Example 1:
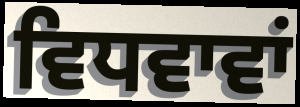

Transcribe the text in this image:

ਵਿਧਵਾਵਾਂ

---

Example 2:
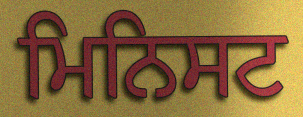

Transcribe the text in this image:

ਮਿਨਿਸਟ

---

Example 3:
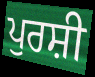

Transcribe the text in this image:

ਪੁਰਸ਼ੀ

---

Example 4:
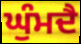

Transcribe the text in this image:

ਘੁੰਮਦੈ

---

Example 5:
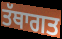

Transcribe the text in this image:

ਤੱਥਾਗਤ